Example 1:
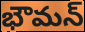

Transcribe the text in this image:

భౌమన్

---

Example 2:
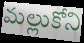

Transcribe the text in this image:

మల్లుకోని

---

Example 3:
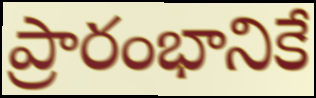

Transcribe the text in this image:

ప్రారంభానికే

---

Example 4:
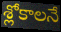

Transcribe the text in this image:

శ్లోకాలనే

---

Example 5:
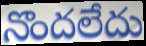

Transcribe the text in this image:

నొందలేదు